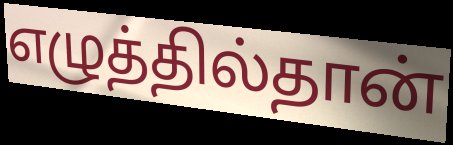
எழுத்தில்தான்